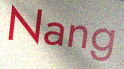
Nang